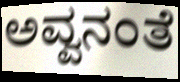
ಅವ್ವನಂತೆ